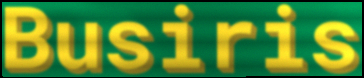
Busiris